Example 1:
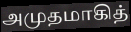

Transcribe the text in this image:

அமுதமாகித்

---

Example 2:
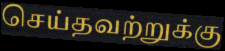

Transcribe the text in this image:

செய்தவற்றுக்கு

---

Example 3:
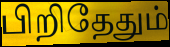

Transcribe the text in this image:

பிறிதேதும்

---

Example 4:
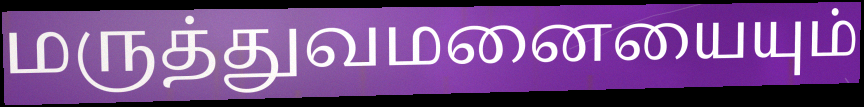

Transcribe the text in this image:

மருத்துவமனையையும்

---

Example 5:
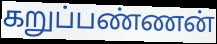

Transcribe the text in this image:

கறுப்பண்ணன்